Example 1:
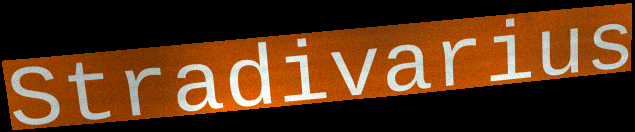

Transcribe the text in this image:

Stradivarius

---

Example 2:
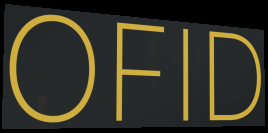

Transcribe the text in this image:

OFID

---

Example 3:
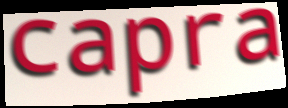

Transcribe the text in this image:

capra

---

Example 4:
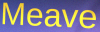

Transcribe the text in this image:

Meave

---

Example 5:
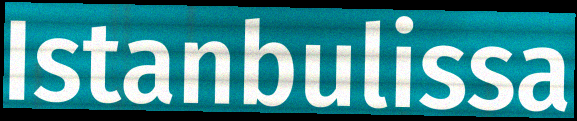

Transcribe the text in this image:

Istanbulissa